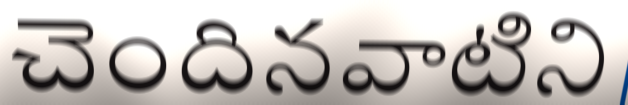
చెందినవాటిని